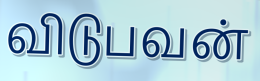
விடுபவன்